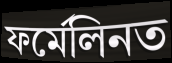
ফৰ্মেলিনত